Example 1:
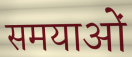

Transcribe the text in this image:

समयाओं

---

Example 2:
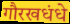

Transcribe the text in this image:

गौरखधंधे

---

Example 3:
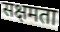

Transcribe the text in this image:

सक्षमता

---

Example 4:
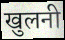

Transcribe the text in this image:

खुलनी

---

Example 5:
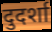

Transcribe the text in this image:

दुदर्शा